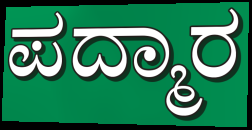
ಪದ್ಮಾರ